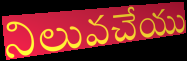
నిలువచేయు